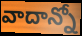
వాదాన్నో